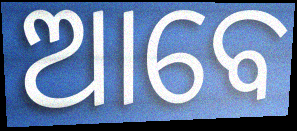
ଆବେ